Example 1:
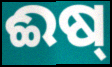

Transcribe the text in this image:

ଈଷ୍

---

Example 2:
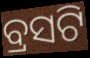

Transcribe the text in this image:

ବ୍ରସଟି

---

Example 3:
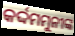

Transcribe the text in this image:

କର୍ଦ୍ଦମମୁନୀଙ୍କ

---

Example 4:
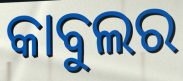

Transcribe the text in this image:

କାବୁଲର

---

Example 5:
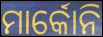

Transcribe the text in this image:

ମାର୍କୋନି